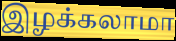
இழக்கலாமா